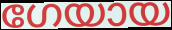
ഗേയായ